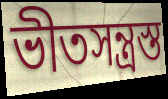
ভীতসন্ত্রস্ত